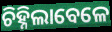
ଚିହ୍ନିଲାବେଳେ